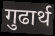
गुढार्थ